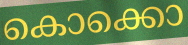
കൊക്കൊ